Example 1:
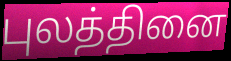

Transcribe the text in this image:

புலத்தினை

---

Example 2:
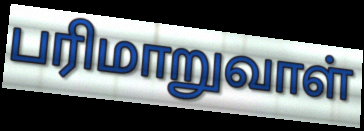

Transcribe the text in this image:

பரிமாறுவாள்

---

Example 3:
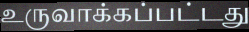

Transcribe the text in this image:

உருவாக்கப்பட்டது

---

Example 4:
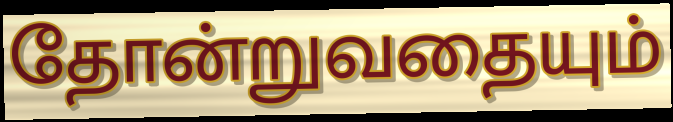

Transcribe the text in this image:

தோன்றுவதையும்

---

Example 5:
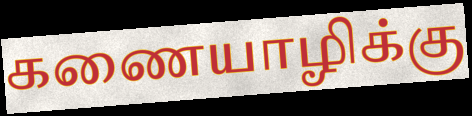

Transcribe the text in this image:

கணையாழிக்கு